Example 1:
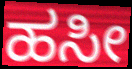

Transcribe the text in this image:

ಹಸೀ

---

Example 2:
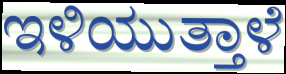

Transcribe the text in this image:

ಇಳಿಯುತ್ತಾಳೆ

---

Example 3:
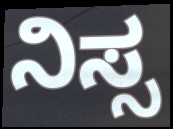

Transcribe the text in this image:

ನಿಸ್ಸ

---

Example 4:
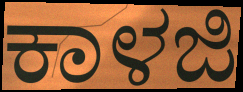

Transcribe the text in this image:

ಕಾಳಜಿ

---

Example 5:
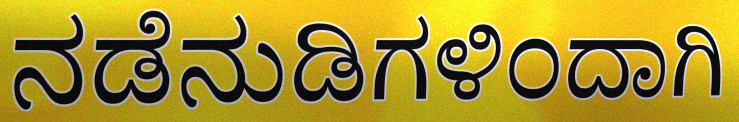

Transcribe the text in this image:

ನಡೆನುಡಿಗಳಿಂದಾಗಿ